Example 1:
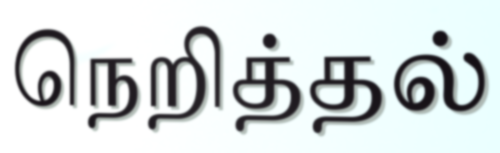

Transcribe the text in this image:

நெறித்தல்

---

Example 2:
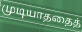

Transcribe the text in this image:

முடியாததைத்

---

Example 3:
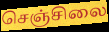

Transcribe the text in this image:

செஞ்சிலை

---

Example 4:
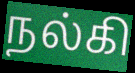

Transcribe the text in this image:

நல்கி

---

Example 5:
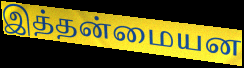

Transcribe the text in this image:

இத்தன்மையன